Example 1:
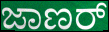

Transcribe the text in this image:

ಜಾಣರ್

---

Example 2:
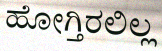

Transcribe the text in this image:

ಹೋಗ್ತಿರಲಿಲ್ಲ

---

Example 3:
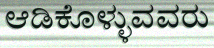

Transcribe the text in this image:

ಆಡಿಕೊಳ್ಳುವವರು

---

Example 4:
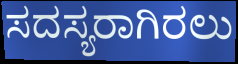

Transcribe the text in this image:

ಸದಸ್ಯರಾಗಿರಲು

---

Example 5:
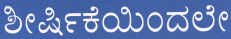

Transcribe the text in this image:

ಶೀರ್ಷಿಕೆಯಿಂದಲೇ